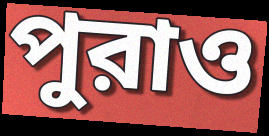
পুরাও